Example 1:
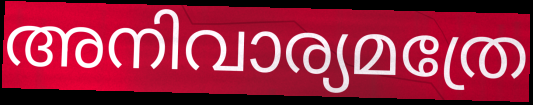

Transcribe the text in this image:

അനിവാര്യമത്രേ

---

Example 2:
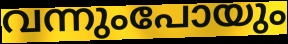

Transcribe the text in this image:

വന്നുംപോയും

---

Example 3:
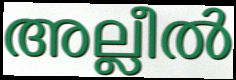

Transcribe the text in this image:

അല്ലീൽ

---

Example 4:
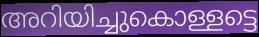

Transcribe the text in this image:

അറിയിച്ചുകൊള്ളട്ടെ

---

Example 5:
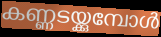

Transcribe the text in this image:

കണ്ണടയ്ക്കുമ്പോൾ